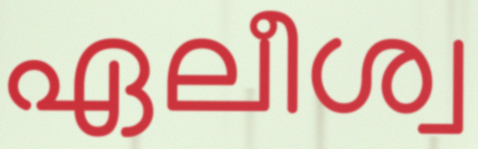
ഏലീശ്വ